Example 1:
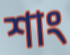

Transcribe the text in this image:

শাং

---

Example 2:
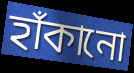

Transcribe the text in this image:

হাঁকানো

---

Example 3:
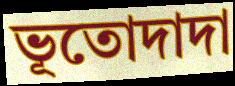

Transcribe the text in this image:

ভূতোদাদা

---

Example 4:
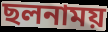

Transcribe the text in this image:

ছলনাময়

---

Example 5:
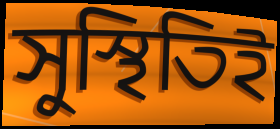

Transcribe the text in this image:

সুস্থিতিই